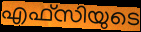
എഫ്സിയുടെ